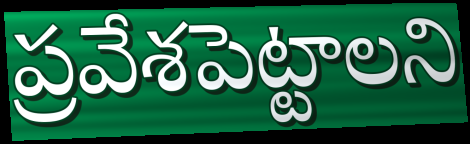
ప్రవేశపెట్టాలని